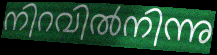
നിറവിൽനിന്നു